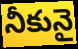
నీకునై